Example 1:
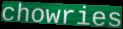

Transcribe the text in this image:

chowries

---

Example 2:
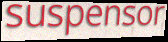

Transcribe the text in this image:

suspensor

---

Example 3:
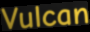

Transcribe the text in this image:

Vulcan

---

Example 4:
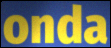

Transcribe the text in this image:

onda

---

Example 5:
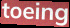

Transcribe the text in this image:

toeing